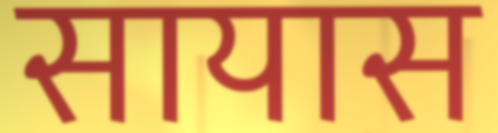
सायास